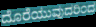
ದೊರೆಯುವುದರಿಂದ